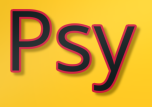
Psy